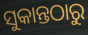
ସୁକାନ୍ତଠାରୁ